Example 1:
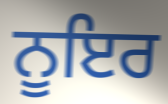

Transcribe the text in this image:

ਨੂਇਰ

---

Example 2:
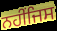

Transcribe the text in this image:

ਨਹੀਂਜਿਸ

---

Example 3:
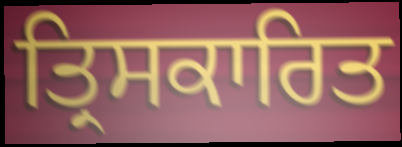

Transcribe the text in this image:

ਤ੍ਰਿਸਕਾਰਿਤ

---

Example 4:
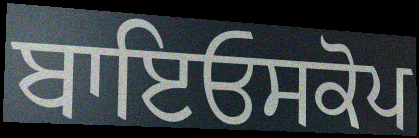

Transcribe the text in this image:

ਬਾਇਓਸਕੋਪ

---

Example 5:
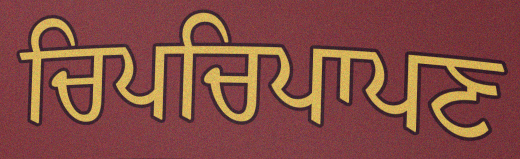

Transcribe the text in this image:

ਚਿਪਚਿਪਾਪਣ